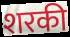
शरकी